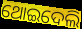
ଥୋଇଦେଲି